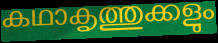
കഥാകൃത്തുക്കളും